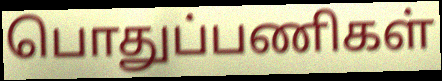
பொதுப்பணிகள்